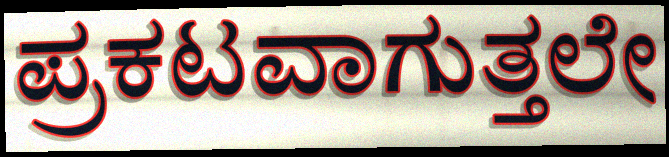
ಪ್ರಕಟವಾಗುತ್ತಲೇ